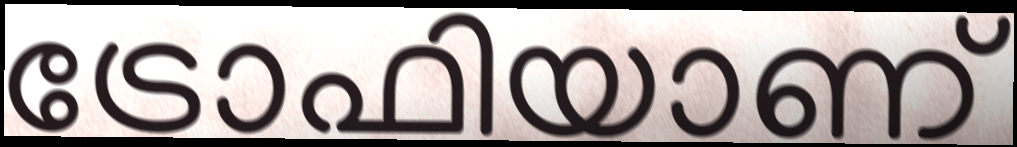
ട്രോഫിയാണ്